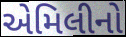
એમિલીનો